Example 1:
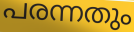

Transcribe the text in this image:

പരന്നതും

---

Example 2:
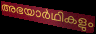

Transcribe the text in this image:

അഭയാർഥികളും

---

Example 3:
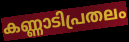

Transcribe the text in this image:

കണ്ണാടിപ്രതലം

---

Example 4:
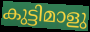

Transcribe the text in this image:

കുട്ടിമാളു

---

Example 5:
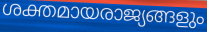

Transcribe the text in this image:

ശക്തമായരാജ്യങ്ങളും